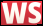
WS